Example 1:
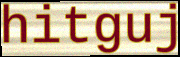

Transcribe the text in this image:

hitguj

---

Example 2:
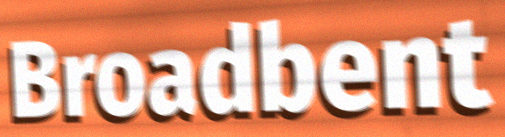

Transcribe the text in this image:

Broadbent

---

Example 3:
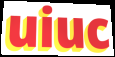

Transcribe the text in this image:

uiuc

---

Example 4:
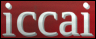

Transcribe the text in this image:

iccai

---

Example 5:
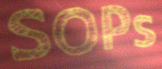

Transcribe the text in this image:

SOPs